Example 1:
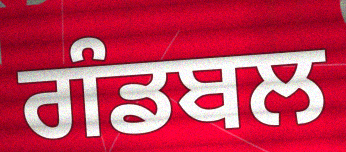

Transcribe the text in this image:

ਗੰਡਬਲ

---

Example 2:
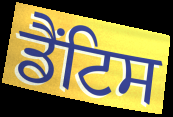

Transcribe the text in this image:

ਡੈਂਟਿਸ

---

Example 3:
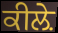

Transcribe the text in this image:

ਕੀਲ਼ੇ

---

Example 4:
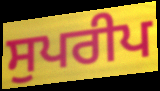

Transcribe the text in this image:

ਸੁਪਰੀਪ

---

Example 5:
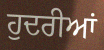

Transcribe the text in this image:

ਹੁਦਰੀਆਂ